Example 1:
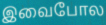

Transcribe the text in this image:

இவைபோல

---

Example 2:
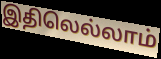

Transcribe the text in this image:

இதிலெல்லாம்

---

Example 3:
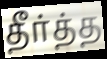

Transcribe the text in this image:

தீர்த்த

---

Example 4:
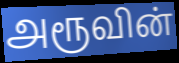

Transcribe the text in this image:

அரூவின்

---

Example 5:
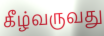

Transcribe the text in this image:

கீழ்வருவது